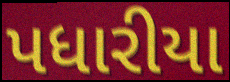
પધારીયા